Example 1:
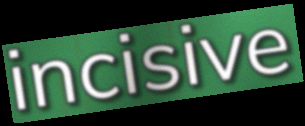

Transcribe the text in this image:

incisive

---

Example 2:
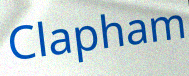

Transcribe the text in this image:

Clapham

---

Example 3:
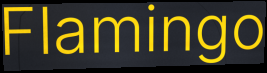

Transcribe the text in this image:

Flamingo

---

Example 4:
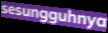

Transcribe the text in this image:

sesungguhnya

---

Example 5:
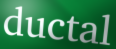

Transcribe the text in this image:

ductal